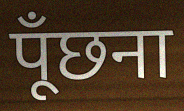
पूँछना